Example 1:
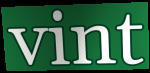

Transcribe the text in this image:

vint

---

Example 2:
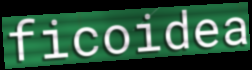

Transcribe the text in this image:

ficoidea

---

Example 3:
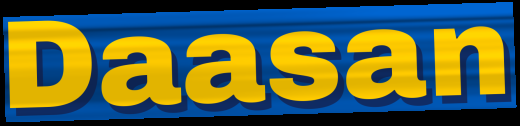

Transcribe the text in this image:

Daasan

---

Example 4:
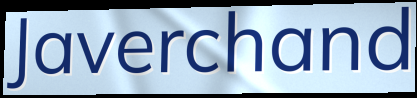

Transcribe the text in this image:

Javerchand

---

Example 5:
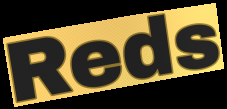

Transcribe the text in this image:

Reds